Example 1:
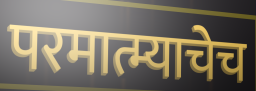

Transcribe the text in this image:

परमात्म्याचेच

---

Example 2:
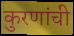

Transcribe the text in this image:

कुरणांची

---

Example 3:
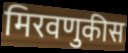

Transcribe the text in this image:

मिरवणुकीस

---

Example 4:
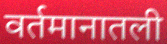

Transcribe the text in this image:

वर्तमानातली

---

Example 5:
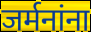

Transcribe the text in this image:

जर्मनांना